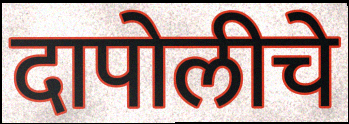
दापोलीचे